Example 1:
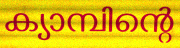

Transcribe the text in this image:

ക്യാമ്പിന്റെ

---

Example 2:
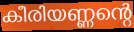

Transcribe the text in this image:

കീരിയണ്ണന്റെ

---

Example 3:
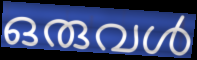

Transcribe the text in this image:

ഒരുവൾ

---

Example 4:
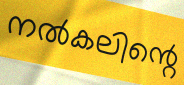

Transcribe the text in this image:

നൽകലിന്റെ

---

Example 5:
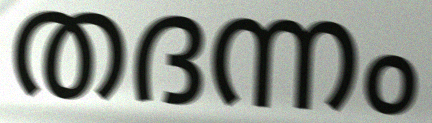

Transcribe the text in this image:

തദന്നം